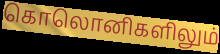
கொலொனிகளிலும்